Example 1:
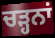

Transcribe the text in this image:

ਚੜ੍ਹਨਾਂ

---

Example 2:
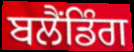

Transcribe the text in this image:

ਬਲੈਂਡਿੰਗ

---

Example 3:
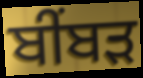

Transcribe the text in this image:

ਬੀਂਬੜ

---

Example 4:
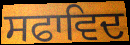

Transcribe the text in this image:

ਸਫਾਵਿਦ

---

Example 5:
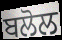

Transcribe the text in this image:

ਬਲੋਲ